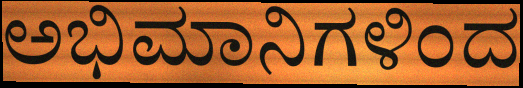
ಅಭಿಮಾನಿಗಳಿಂದ